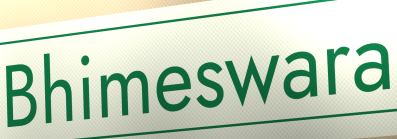
Bhimeswara